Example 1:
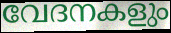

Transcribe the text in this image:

വേദനകളും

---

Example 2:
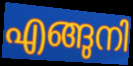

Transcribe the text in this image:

എങ്ങുനി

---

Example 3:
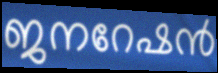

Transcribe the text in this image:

ജനറേഷൻ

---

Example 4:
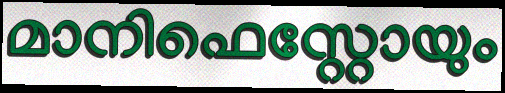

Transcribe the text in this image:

മാനിഫെസ്റ്റോയും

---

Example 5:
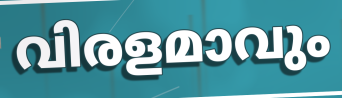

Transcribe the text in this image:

വിരളമാവും